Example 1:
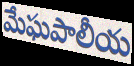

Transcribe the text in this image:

మేఘపాలీయ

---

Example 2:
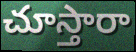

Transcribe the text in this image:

చూస్తారా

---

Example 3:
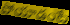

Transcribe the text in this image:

పోయాడంటే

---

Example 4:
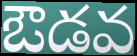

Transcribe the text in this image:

ఔడవ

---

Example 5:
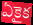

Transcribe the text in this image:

ఏకైక